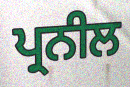
ਪ੍ਰਨੀਲ